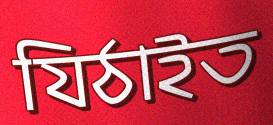
যিঠাইত